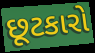
છૂટકારો